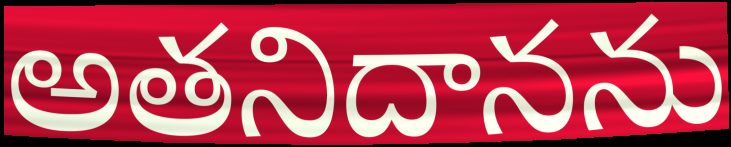
అతనిదానను